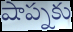
షాప్నకు